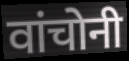
वांचोनी